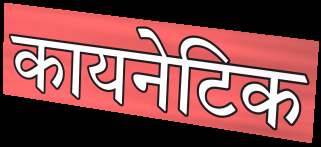
कायनेटिक